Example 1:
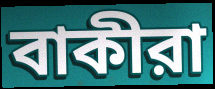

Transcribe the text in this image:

বাকীরা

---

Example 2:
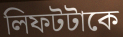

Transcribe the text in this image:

লিফটটাকে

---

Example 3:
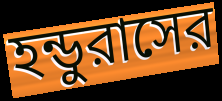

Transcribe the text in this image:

হন্ডুরাসের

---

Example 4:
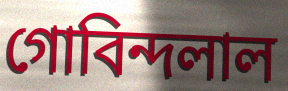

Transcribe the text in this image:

গোবিন্দলাল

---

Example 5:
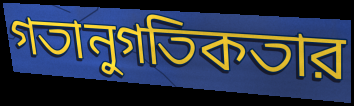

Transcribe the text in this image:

গতানুগতিকতার